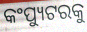
କଂପ୍ୟୁଟରକୁ